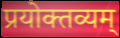
प्रयोक्तव्यम्